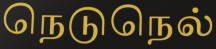
நெடுநெல்